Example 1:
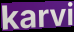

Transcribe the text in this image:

karvi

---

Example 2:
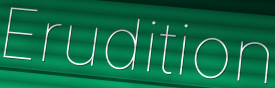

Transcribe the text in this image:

Erudition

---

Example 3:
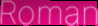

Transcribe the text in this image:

Roman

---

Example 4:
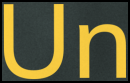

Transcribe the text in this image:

Un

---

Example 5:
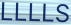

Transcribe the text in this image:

LLLLS